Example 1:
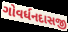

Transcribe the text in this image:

ગોવર્ધનદાસજી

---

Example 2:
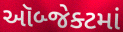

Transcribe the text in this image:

ઑબ્જેક્ટમાં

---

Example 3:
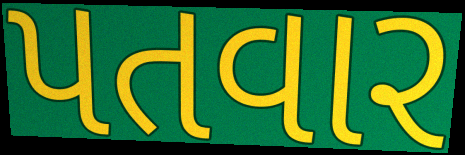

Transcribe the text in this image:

પતવાર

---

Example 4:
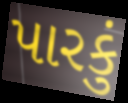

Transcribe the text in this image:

પારકું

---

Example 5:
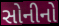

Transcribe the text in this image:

સોનીનો